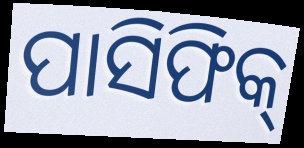
ପାସିଫିକ୍